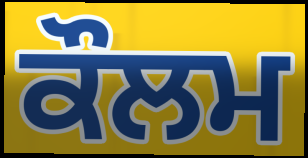
ਕੌਲਮ